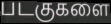
படகுகளை